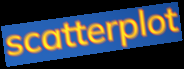
scatterplot